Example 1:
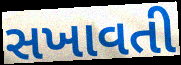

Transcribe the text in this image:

સખાવતી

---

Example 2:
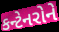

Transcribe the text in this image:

કન્ટેનરોને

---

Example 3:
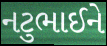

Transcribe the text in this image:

નટુભાઈને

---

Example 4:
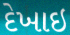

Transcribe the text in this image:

દેખાઇ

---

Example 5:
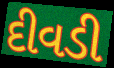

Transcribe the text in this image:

દીવડી